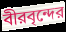
বীরবৃন্দের